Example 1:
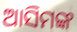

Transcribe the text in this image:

ଆସିମଙ୍କ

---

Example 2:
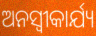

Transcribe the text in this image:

ଅନସ୍ୱୀକାର୍ଯ୍ୟ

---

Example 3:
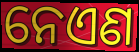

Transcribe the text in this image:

ନେଏଣ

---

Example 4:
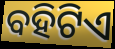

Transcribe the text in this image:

ବହିଟିଏ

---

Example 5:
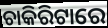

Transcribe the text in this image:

ଚାକିରିଟାରେ